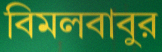
বিমলবাবুর